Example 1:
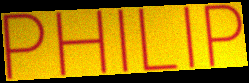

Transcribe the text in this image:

PHILIP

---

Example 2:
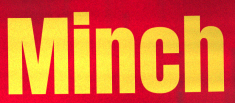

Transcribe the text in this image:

Minch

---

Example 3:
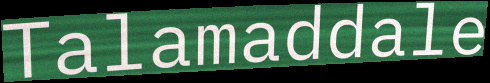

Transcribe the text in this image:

Talamaddale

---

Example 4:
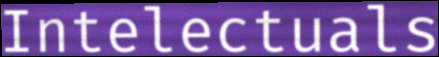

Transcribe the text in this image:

Intelectuals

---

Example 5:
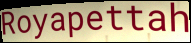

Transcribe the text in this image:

Royapettah